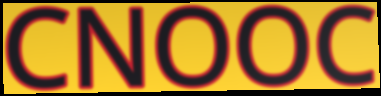
CNOOC